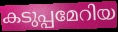
കടുപ്പമേറിയ